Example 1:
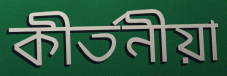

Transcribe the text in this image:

কীর্তনীয়া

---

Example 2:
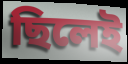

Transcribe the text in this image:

ছিলেই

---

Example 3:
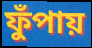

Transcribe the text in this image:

ফুঁপায়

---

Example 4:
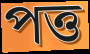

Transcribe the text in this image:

পত্ত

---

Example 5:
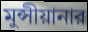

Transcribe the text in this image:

মুন্সীয়ানার